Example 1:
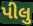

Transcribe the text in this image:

પીલુ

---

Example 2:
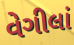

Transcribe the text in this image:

વેગીલાં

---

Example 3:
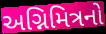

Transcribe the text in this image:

અગ્નિમિત્રનો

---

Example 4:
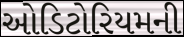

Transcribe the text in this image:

ઓડિટોરિયમની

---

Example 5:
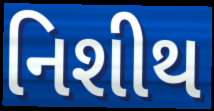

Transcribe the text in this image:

નિશીથ